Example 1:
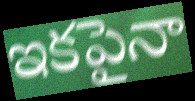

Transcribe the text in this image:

ఇకపైనా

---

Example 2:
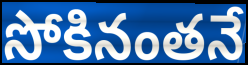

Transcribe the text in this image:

సోకినంతనే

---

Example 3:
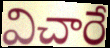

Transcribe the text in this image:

విచారే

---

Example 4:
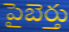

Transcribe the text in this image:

పైబెర్తు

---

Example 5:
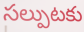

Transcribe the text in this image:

సల్పుటకు